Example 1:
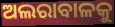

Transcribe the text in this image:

ଅଲରାବାଳକୁ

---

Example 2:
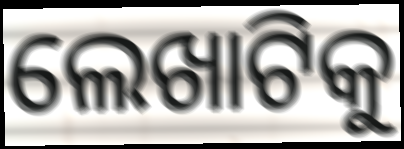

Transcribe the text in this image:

ଲେଖାଟିକୁ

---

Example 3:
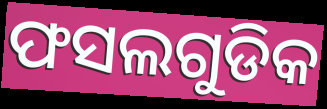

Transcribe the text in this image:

ଫସଲଗୁଡିକ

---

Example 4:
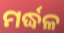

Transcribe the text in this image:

ମର୍ଦ୍ଧଳ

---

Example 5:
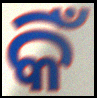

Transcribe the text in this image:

କିଁ